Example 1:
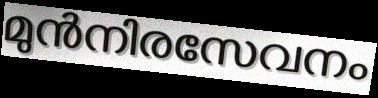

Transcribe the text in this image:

മുൻനിരസേവനം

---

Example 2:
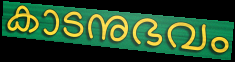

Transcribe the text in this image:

കാടനുഭവം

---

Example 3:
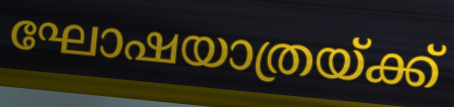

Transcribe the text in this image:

ഘോഷയാത്രയ്ക്ക്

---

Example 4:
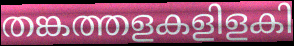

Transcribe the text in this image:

തങ്കത്തളകളിളകി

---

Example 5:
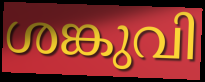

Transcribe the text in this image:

ശങ്കുവി